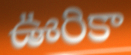
ఊరికా